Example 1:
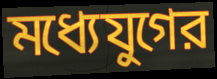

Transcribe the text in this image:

মধ্যেযুগের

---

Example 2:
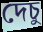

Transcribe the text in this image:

দেচু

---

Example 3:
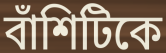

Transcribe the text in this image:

বাঁশিটিকে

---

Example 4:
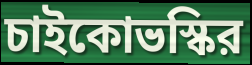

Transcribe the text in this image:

চাইকোভস্কির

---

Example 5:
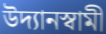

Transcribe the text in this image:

উদ্যানস্বামী